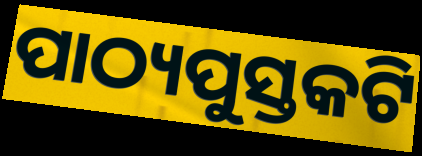
ପାଠ୍ୟପୁସ୍ତକଟି